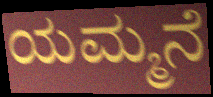
ಯಮ್ಮನೆ